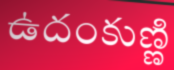
ఉదంకుణ్ణి